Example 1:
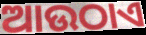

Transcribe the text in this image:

ଆଉଠାଏ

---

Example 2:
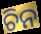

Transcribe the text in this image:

ଚିନ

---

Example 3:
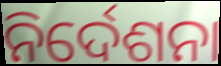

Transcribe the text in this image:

ନିର୍ଦେଶନା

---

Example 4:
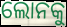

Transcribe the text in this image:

ଲୋନକୁ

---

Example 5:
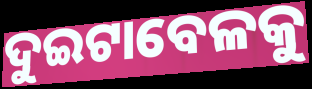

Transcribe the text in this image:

ଦୁଇଟାବେଳକୁ